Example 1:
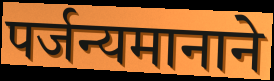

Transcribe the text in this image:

पर्जन्यमानाने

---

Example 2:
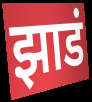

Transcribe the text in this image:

झाडं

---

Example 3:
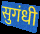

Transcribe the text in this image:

सुगंधी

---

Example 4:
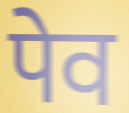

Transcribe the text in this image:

पेव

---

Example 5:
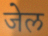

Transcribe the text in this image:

जेल